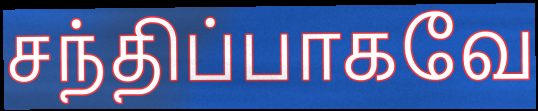
சந்திப்பாகவே